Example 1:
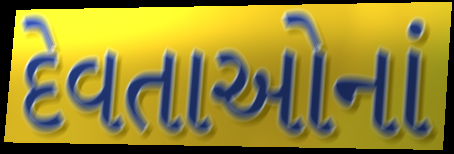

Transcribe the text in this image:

દેવતાઓનાં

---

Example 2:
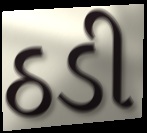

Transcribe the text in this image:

ઠડી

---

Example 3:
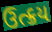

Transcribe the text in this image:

ઉત્ક્રય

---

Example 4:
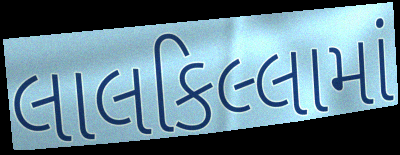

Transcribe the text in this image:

લાલકિલ્લામાં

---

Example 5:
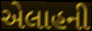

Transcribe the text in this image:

એલાહની